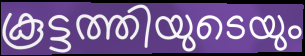
കൂട്ടത്തിയുടെയും